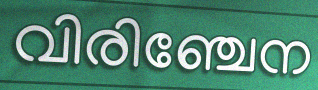
വിരിഞ്ചേന